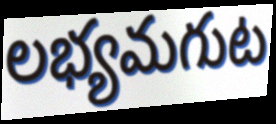
లభ్యమగుట